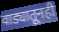
वाड्यातूनही